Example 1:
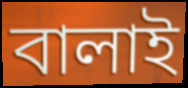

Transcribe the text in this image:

বালাই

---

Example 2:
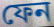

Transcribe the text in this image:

ফেন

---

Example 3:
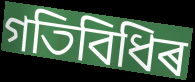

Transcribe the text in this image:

গতিবিধিৰ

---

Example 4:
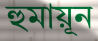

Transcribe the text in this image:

হুমায়ূন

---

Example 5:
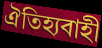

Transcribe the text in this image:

ঐতিহ্যবাহী